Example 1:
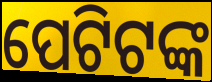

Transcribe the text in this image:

ପେଟିଟଙ୍କ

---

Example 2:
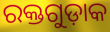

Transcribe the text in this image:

ରକ୍ତଗୁଡ଼ାକ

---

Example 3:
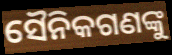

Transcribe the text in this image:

ସୈନିକଗଣଙ୍କୁ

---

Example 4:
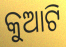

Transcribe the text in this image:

କୁଆଟି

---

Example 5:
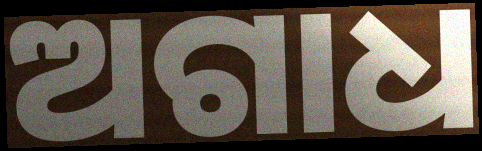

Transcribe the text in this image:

ଅଗାଧ